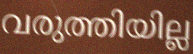
വരുത്തിയില്ല